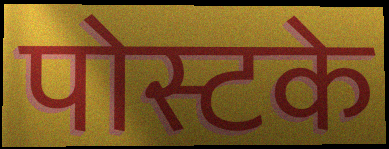
पोस्टके